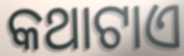
କଥାଟାଏ